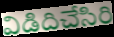
విడిదిచేసిరి